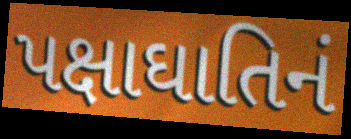
પક્ષાઘાતિનં